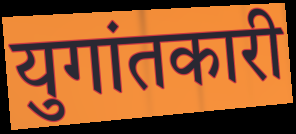
युगांतकारी